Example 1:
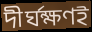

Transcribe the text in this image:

দীর্ঘক্ষণই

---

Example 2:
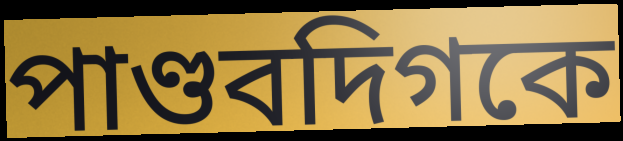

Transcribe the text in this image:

পাণ্ডবদিগকে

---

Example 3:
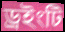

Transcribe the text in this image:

ড্রইংটি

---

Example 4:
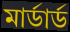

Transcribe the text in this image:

মার্ডার্ড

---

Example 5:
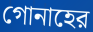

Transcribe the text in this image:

গোনাহের